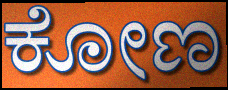
ಕೋಣ